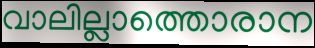
വാലില്ലാത്തൊരാന